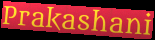
Prakashani